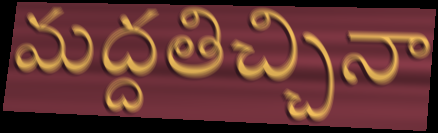
మద్దతిచ్చినా